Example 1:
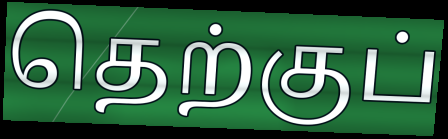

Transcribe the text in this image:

தெற்குப்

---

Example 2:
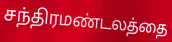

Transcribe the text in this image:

சந்திரமண்டலத்தை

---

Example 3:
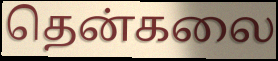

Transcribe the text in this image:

தென்கலை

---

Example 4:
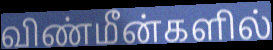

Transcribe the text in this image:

விண்மீன்களில்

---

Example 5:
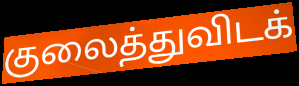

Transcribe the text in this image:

குலைத்துவிடக்